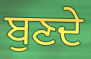
ਬੁਣਦੇ